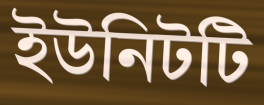
ইউনিটটি